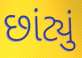
છાંટ્યું